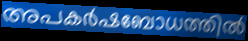
അപകർഷബോധത്തിൽ